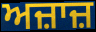
ਅਜ਼ਾਜ਼